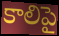
కాలిపై